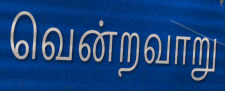
வென்றவாறு